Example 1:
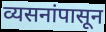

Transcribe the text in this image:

व्यसनांपासून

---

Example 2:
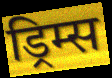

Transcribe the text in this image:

ड्रिम्स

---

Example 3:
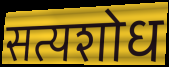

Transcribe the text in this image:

सत्यशोध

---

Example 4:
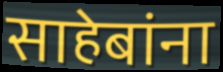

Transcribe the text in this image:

साहेबांना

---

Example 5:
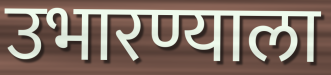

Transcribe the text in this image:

उभारण्याला